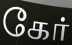
கேர்